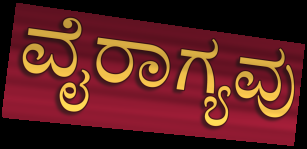
ವೈರಾಗ್ಯವು